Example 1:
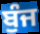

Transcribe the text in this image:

ਬੁੰਜ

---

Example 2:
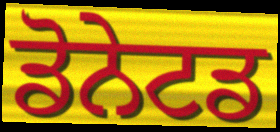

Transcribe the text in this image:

ਡੋਨੇਟਡ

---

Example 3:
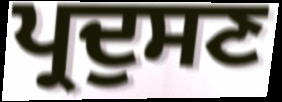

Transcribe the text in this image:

ਪ੍ਰਦੁਸਣ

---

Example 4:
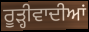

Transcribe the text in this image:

ਰੂੜ੍ਹੀਵਾਦੀਆਂ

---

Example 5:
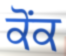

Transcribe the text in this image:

ਕੋਂਕ